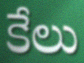
కేలు